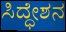
ಸಿದ್ಧೇಶನ